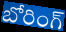
బోరింగ్